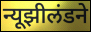
न्यूझीलंडने